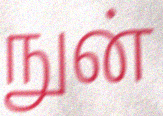
நுன்